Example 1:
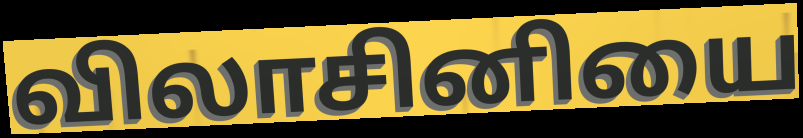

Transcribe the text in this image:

விலாசினியை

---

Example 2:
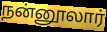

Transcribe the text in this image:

நன்னூலார்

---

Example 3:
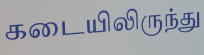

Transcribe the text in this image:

கடையிலிருந்து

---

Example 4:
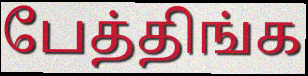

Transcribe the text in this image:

பேத்திங்க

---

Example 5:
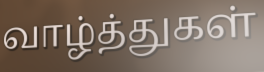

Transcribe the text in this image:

வாழ்த்துகள்